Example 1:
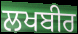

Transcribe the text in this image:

ਲਖਬੀਰ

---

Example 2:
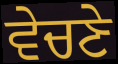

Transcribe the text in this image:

ਵੇਚਣੇ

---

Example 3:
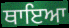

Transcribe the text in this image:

ਥਾਇਆ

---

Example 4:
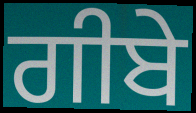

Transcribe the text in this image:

ਗੀਬੇ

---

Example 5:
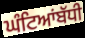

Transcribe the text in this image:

ਘੰਟਿਆਂਬੱਧੀ